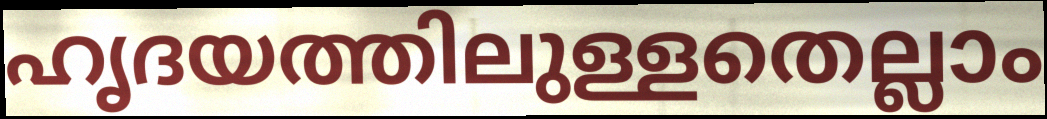
ഹൃദയത്തിലുള്ളതെല്ലാം